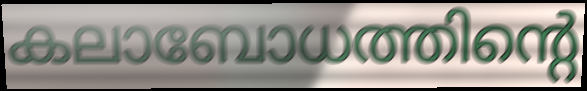
കലാബോധത്തിന്റെ